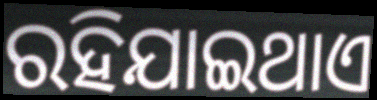
ରହିଯାଇଥାଏ